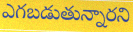
ఎగబడుతున్నారని